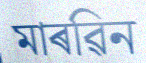
মাৰৱিন